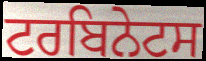
ਟਰਬਿਨੇਟਸ